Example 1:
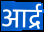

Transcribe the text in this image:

आर्द्र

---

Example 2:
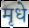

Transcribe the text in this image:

मृधे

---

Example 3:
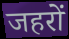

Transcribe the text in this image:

जहरों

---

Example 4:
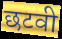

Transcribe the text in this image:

छटवी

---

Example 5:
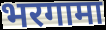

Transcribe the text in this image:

भरगामा